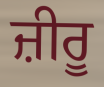
ਜ਼ੀਰੂ